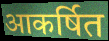
आकर्षित